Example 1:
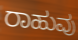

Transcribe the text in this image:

ರಾಹುವು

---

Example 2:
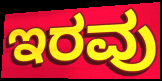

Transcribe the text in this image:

ಇರವು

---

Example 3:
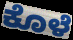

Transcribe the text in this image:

ಕೊಳೆ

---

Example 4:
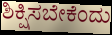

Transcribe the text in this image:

ಶಿಕ್ಷಿಸಬೇಕೆಂದು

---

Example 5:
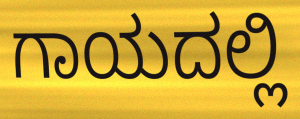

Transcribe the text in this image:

ಗಾಯದಲ್ಲಿ